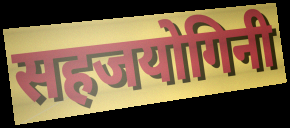
सहजयोगिनी